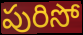
పురిసో